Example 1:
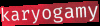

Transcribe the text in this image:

karyogamy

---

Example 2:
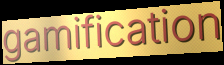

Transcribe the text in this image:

gamification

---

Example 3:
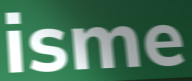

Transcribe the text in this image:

isme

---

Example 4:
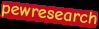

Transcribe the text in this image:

pewresearch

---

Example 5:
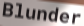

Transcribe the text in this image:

Blunder